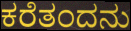
ಕರೆತಂದನು